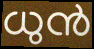
ധുൻ